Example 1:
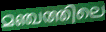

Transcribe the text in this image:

മഞ്ചത്തിലെ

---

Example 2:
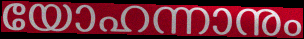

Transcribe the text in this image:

യോഹന്നാനും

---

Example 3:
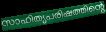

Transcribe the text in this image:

സാഹിത്യപരിഷത്തിന്റെ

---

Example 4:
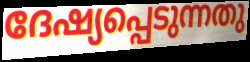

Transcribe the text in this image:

ദേഷ്യപ്പെടുന്നതു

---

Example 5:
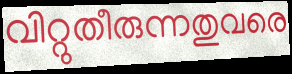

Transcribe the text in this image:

വിറ്റുതീരുന്നതുവരെ